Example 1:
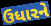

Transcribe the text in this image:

ઉધારને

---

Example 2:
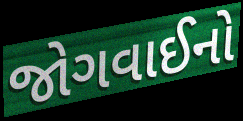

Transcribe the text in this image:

જોગવાઈનો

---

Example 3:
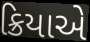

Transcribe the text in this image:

ક્રિયાએ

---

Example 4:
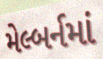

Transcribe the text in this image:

મેલ્બર્નમાં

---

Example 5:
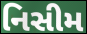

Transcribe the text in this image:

નિસીમ